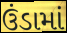
ઉંડામાં